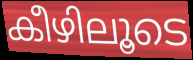
കീഴിലൂടെ